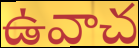
ఉవాచ